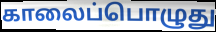
காலைப்பொழுது